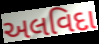
અલવિદા